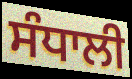
ਸੰਧਾਲੀ